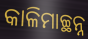
କାଳିମାଚ୍ଛନ୍ନ